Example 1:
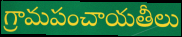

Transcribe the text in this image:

గ్రామపంచాయతీలు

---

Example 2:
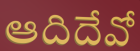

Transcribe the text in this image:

ఆదిదేవో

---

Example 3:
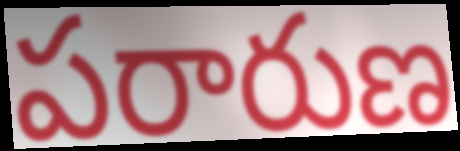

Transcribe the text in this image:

పరారుణ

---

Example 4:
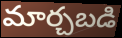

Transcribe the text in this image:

మార్చబడి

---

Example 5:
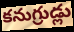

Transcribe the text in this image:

కనుగ్రుడ్లు